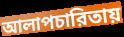
আলাপচারিতায়